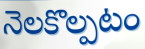
నెలకొల్పటం